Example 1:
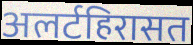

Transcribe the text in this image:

अलर्टहिरासत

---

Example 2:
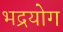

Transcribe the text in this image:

भद्रयोग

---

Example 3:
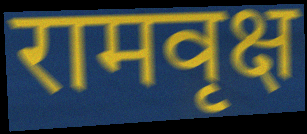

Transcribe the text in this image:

रामवृक्ष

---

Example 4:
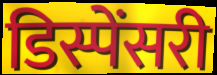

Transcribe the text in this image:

डिस्पेंसरी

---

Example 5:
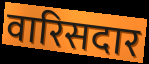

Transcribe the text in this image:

वारिसदार